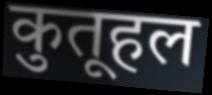
कुतूहल